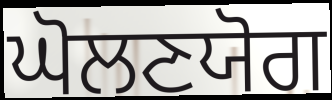
ਘੋਲਣਯੋਗ